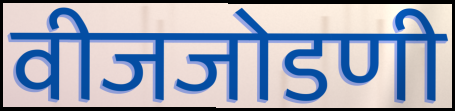
वीजजोडणी